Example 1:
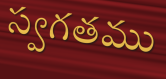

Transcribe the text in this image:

స్వగతము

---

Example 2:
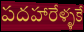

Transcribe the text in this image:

పదహారేళ్ళకే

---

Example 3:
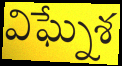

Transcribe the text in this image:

విఘ్నేశ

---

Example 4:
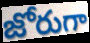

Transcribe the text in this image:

జోరుగా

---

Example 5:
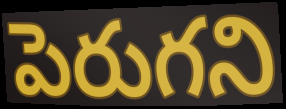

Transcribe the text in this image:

పెరుగని